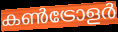
കൺട്രോളർ